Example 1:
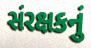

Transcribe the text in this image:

સંરક્ષકનું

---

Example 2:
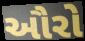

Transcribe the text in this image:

ઔરો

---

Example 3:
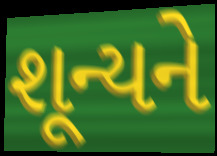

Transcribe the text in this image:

શૂન્યને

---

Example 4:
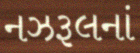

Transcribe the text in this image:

નઝરૂલનાં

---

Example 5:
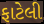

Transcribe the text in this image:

ફાટેલી